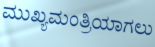
ಮುಖ್ಯಮಂತ್ರಿಯಾಗಲು